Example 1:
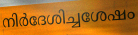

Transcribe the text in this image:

നിർദേശിച്ചശേഷം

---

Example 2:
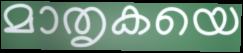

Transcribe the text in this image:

മാതൃകയെ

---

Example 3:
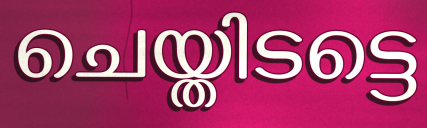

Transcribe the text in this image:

ചെയ്തിടട്ടെ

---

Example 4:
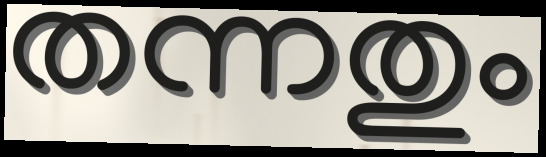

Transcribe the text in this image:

തന്നതും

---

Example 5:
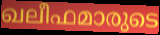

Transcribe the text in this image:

ഖലീഫമാരുടെ